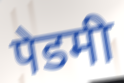
पेडमी